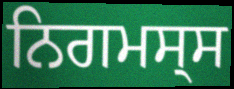
ਨਿਗਮਸ੍ਸ